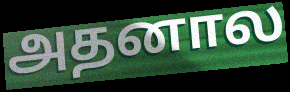
அதனால